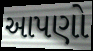
આપણો